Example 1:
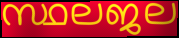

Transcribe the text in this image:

സ്ഥലജല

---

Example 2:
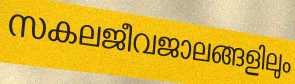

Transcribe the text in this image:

സകലജീവജാലങ്ങളിലും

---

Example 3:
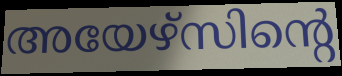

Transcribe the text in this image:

അയേഴ്സിന്റെ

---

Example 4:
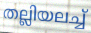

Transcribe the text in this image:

തല്ലിയലച്ച്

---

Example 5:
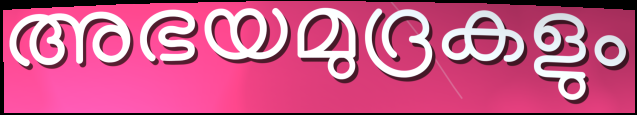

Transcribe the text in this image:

അഭയമുദ്രകളും